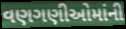
વણગણીઓમાંની